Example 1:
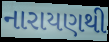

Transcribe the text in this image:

નારાયણથી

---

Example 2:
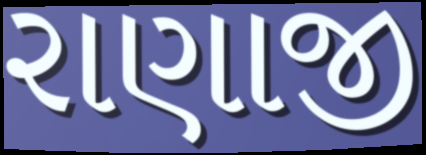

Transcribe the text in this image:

રાણાજી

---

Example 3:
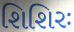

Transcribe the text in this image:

શિશિરઃ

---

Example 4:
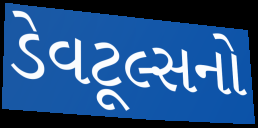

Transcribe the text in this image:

ડેવટૂલ્સનો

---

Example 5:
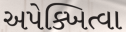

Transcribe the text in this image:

અપેક્ખિત્વા